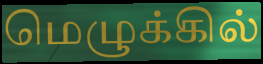
மெழுக்கில்